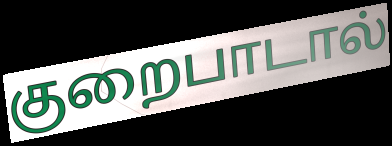
குறைபாடால்